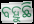
ବହୁଛି